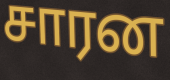
சாரன